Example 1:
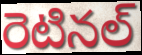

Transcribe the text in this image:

రెటినల్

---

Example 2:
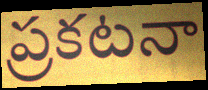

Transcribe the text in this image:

ప్రకటనా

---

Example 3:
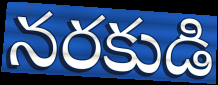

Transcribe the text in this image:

నరకుడి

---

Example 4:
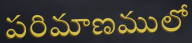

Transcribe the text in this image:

పరిమాణములో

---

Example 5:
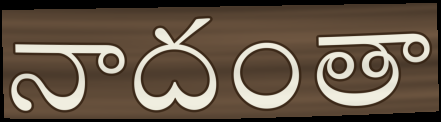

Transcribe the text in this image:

నాదంతా